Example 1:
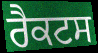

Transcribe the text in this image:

ਰੈਕਟਸ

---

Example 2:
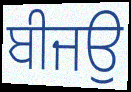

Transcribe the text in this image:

ਬੀਜਉ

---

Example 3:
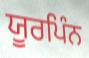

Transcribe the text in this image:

ਯੂਰਪਿੰਨ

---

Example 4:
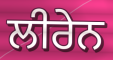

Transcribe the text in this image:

ਲੀਰੇਨ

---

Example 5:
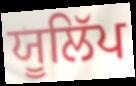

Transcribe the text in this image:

ਯੂਲਿੱਪ